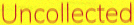
Uncollected